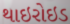
થાઇરોઇડ